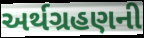
અર્થગ્રહણની